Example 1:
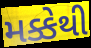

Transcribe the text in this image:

મક્કેથી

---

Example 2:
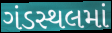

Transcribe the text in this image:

ગંડસ્થલમાં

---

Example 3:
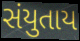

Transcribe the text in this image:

સંયુતાય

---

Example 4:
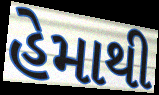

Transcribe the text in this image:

હેમાથી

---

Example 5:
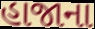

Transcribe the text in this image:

હાજાના